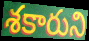
శకారుని